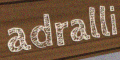
adralli